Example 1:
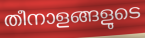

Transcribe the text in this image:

തീനാളങ്ങളുടെ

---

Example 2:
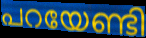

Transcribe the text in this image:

പറയേണ്ടി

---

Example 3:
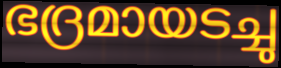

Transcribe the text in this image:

ഭദ്രമായടച്ചു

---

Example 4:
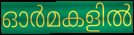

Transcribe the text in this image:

ഓർമകളിൽ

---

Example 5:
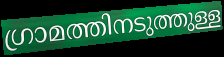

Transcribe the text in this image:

ഗ്രാമത്തിനടുത്തുള്ള